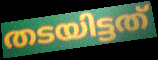
തടയിട്ടത്